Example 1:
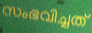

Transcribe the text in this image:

സംഭവിച്ചത്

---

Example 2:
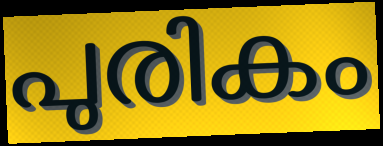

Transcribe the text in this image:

പുരികം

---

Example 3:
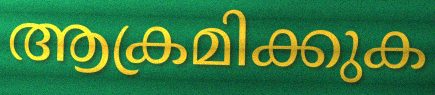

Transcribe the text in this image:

ആക്രമിക്കുക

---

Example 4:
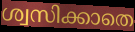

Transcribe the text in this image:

ശ്വസിക്കാതെ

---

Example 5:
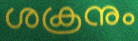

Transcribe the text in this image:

ശക്രനും